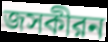
জসকীরন